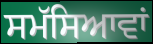
ਸਮੱਸਿਆਵਾਂ